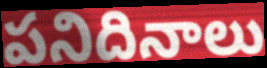
పనిదినాలు